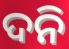
ଦନି